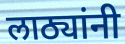
लाठ्यांनी